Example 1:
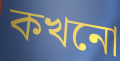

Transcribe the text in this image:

কখনো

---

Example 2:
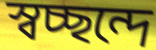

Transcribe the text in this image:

স্বচ্ছন্দে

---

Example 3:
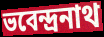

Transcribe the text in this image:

ভবেন্দ্ৰনাথ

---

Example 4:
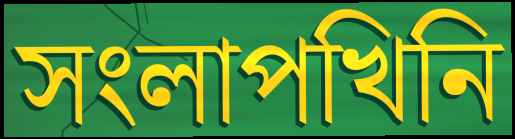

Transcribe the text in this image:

সংলাপখিনি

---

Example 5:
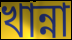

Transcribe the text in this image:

খান্না